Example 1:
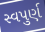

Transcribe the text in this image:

સ્વપુર્ણ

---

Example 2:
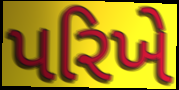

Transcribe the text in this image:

પરિખે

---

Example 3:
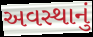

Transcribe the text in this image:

અવસ્થાનું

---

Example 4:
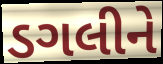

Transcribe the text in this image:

ડગલીને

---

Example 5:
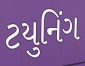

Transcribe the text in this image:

ટયુનિંગ